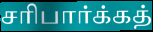
சரிபார்க்கத்